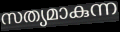
സത്യമാകുന്ന